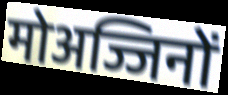
मोअज्जिनों